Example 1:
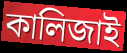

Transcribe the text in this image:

কালিজাই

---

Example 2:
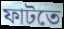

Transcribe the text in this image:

ফাটতে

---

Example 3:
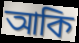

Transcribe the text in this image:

আকি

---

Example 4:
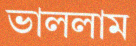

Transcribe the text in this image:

ভাললাম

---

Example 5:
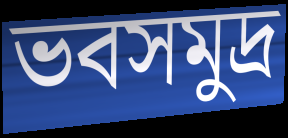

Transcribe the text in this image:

ভবসমুদ্র